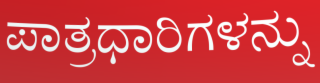
ಪಾತ್ರಧಾರಿಗಳನ್ನು